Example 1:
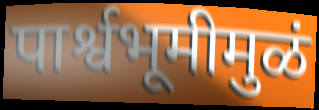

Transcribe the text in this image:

पार्श्वभूमीमुळं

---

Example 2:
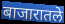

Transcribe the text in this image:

बाजारातले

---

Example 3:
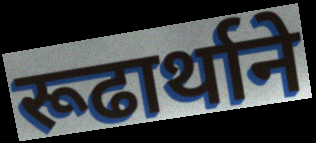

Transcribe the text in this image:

रूढार्थाने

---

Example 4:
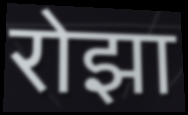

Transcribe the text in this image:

रोझा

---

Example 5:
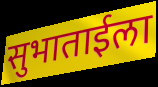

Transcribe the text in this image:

सुभाताईला